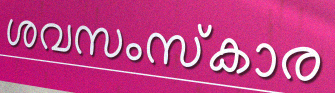
ശവസംസ്കാര